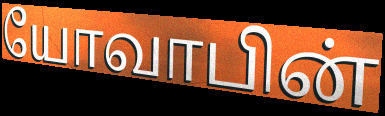
யோவாபின்